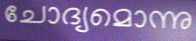
ചോദ്യമൊന്നു